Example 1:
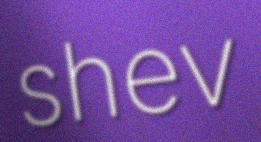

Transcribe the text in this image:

shev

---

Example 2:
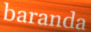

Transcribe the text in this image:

baranda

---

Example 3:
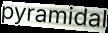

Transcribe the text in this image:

pyramidal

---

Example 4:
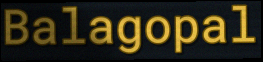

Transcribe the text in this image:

Balagopal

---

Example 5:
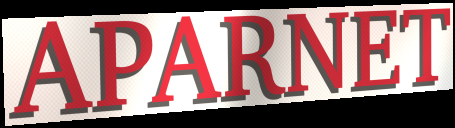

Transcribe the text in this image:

APARNET